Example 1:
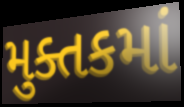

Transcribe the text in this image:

મુક્તકમાં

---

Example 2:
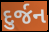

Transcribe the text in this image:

દુર્જન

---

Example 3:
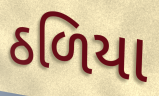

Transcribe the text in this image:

ઠળિયા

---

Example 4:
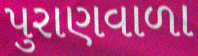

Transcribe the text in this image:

પુરાણવાળા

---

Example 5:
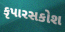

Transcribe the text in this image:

કૃપારસકોશ